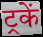
ट्रकें